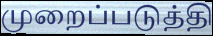
முறைப்படுத்தி